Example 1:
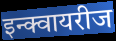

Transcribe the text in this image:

इन्क्वायरीज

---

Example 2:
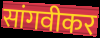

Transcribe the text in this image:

सांगवीकर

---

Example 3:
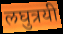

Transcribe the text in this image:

लघुत्रयी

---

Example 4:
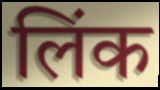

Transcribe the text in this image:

लिंक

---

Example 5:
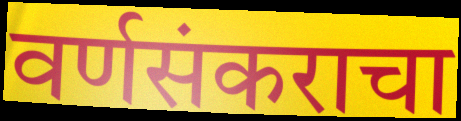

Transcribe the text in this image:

वर्णसंकराचा